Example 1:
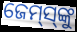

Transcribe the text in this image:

ଜେମ୍‌ସ୍‌ଙ୍କୁ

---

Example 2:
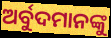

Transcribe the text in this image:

ଅର୍ବୁଦମାନଙ୍କୁ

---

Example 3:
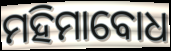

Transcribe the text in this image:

ମହିମାବୋଧ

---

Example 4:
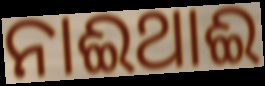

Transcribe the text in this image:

ନାଈଥାଈ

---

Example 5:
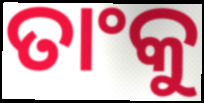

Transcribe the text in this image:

ତାଂକୁ